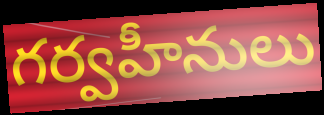
గర్వహీనులు